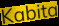
Kabita